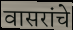
वासरांचे